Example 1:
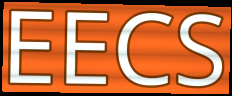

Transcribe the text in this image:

EECS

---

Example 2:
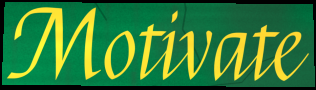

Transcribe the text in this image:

Motivate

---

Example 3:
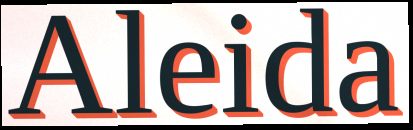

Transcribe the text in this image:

Aleida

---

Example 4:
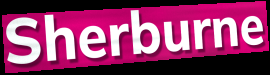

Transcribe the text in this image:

Sherburne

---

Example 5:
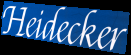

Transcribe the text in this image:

Heidecker